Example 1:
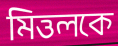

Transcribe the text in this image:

মিত্তলকে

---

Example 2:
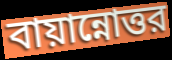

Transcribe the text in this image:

বায়ান্নোত্তর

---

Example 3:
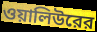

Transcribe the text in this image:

ওয়ালিউরের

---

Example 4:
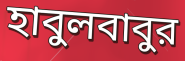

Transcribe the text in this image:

হাবুলবাবুর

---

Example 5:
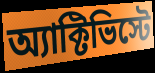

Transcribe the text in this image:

অ্যাক্টিভিস্টে